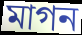
মাগন